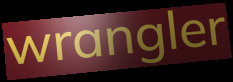
wrangler